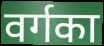
वर्गका